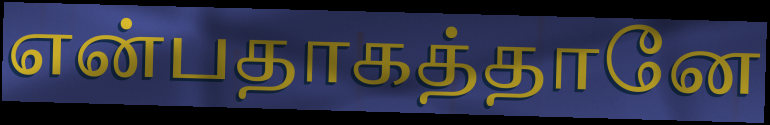
என்பதாகத்தானே